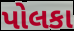
પોલકા